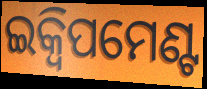
ଇକ୍ୱିପମେଣ୍ଟ